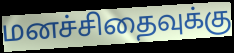
மனச்சிதைவுக்கு